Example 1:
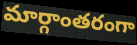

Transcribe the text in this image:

మార్గాంతరంగా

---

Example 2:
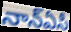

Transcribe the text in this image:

నాన్ఏసీ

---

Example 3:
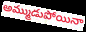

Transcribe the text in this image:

అమ్ముడుపోయినా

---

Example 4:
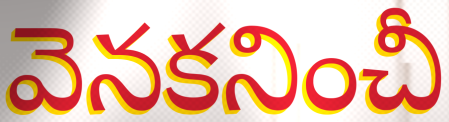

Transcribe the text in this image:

వెనకనించీ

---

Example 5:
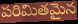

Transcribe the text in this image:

పరిమితమైన